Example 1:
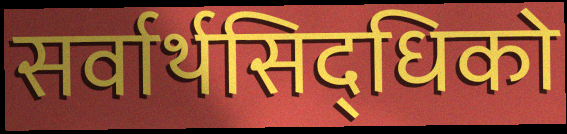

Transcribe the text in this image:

सर्वार्थसिद्धिको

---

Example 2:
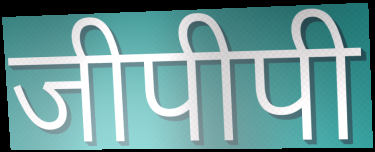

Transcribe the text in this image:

जीपीपी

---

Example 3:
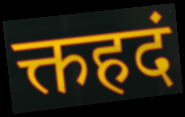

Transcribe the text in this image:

क्तहदं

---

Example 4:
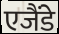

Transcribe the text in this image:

एजैंडे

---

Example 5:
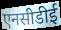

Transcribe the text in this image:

एनसीडीई